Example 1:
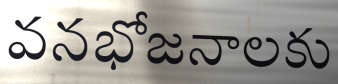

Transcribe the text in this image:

వనభోజనాలకు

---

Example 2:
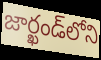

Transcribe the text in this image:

జార్ఖండ్‌లోని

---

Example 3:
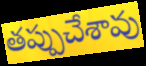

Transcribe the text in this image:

తప్పుచేశావు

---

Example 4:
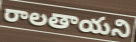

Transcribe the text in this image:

రాలతాయని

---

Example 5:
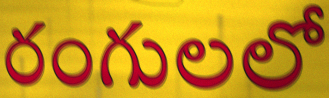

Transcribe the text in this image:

రంగులలో